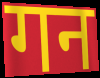
गन